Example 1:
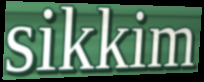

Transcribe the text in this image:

sikkim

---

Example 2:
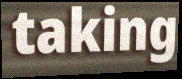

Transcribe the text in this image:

taking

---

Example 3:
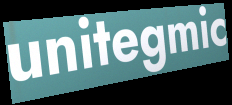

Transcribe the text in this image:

unitegmic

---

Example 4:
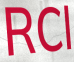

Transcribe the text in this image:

RCl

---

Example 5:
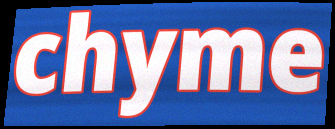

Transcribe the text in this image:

chyme